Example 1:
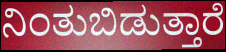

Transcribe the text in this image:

ನಿಂತುಬಿಡುತ್ತಾರೆ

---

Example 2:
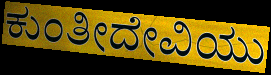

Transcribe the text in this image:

ಕುಂತೀದೇವಿಯು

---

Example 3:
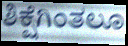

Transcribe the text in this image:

ಶಿಕ್ಷೆಗಿಂತಲೂ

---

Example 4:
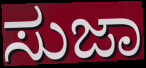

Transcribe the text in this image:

ಸುಜಾ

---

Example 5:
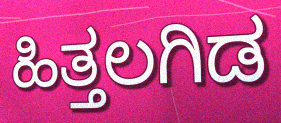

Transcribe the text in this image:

ಹಿತ್ತಲಗಿಡ